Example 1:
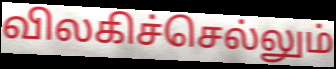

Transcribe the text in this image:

விலகிச்செல்லும்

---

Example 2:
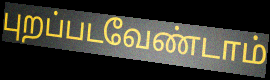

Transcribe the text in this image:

புறப்படவேண்டாம்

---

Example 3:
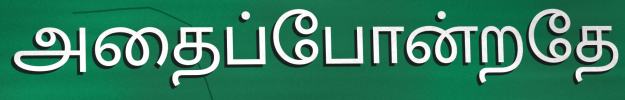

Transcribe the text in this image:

அதைப்போன்றதே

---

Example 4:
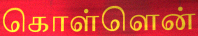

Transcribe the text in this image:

கொள்ளென்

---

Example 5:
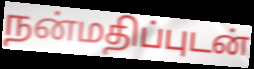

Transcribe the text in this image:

நன்மதிப்புடன்